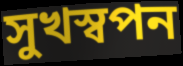
সুখস্বপন